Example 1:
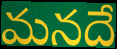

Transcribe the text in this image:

మనదే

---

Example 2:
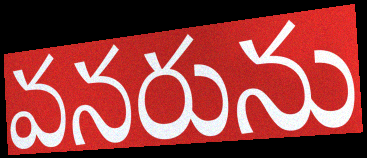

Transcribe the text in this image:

వనరును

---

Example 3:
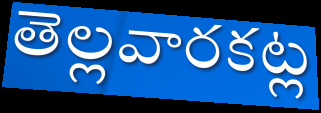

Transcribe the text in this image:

తెల్లవారకట్ల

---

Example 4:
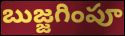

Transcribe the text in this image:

బుజ్జగింపూ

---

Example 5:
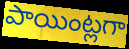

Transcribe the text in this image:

పాయింట్లగా